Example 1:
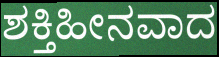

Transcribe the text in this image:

ಶಕ್ತಿಹೀನವಾದ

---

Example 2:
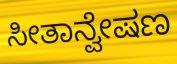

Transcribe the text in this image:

ಸೀತಾನ್ವೇಷಣ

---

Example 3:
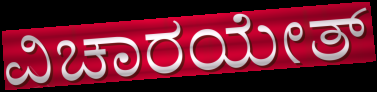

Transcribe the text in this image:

ವಿಚಾರಯೇತ್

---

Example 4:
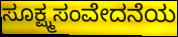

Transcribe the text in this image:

ಸೂಕ್ಷ್ಮಸಂವೇದನೆಯ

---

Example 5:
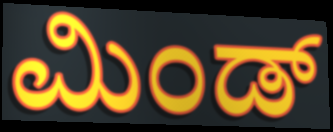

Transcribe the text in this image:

ಮಿಂಡ್